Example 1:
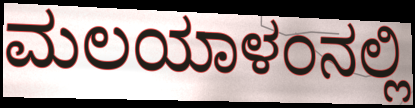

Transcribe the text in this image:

ಮಲಯಾಳಂನಲ್ಲಿ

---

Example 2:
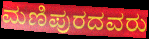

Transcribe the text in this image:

ಮಣಿಪುರದವರು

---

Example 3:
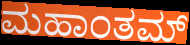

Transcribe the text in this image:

ಮಹಾಂತಮ್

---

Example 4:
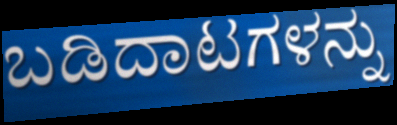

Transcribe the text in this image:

ಬಡಿದಾಟಗಳನ್ನು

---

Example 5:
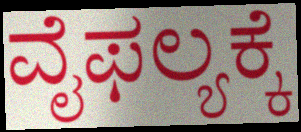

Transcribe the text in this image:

ವೈಫಲ್ಯಕ್ಕೆ